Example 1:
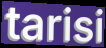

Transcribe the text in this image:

tarisi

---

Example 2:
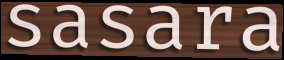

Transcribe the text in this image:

sasara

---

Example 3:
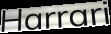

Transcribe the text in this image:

Harrari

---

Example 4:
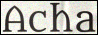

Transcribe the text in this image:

Acha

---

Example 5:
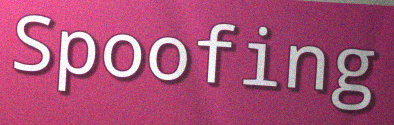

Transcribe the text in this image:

Spoofing